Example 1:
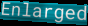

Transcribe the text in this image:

Enlarged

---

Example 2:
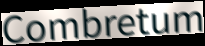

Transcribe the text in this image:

Combretum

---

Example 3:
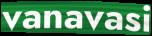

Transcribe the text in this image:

vanavasi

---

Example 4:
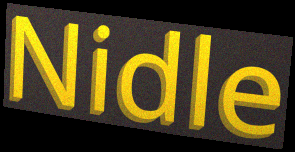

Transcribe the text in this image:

Nidle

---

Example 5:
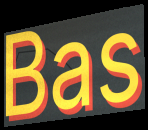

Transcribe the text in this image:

Bas